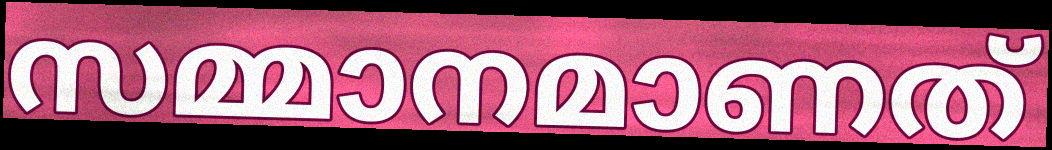
സമ്മാനമാണത്